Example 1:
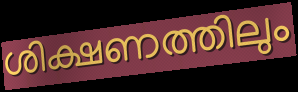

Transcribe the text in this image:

ശിക്ഷണത്തിലും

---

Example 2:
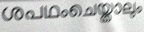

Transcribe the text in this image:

ശപഥംചെയ്താലും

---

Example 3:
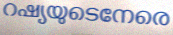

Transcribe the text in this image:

റഷ്യയുടെനേരെ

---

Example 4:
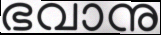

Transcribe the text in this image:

ഭവാനു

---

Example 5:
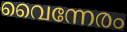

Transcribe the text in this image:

വൈന്നേരം